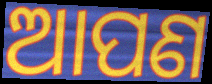
ଆପଣ